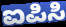
ಐಪಿಸಿ